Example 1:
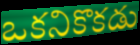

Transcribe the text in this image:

ఒకనికొకడు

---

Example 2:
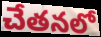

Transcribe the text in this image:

చేతనలో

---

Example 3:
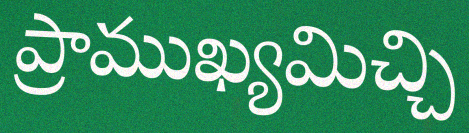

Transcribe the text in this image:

ప్రాముఖ్యమిచ్చి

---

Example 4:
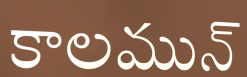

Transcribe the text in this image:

కాలమున్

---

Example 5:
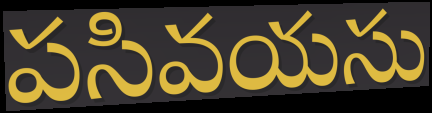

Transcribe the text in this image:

పసివయసు